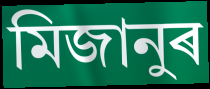
মিজানুৰ